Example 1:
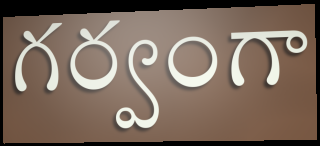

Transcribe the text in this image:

గర్వంగా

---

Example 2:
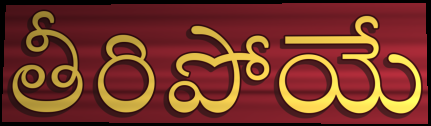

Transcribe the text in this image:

తీరిపోయే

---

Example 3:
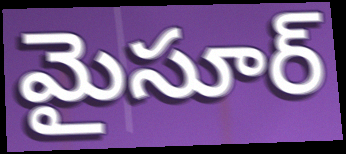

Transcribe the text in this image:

మైసూర్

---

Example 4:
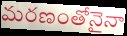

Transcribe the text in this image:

మరణంతోనైనా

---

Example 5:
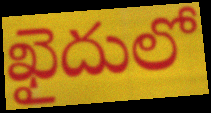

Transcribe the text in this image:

ఖైదులో